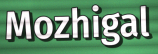
Mozhigal